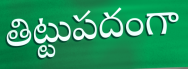
తిట్టుపదంగా